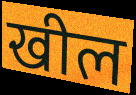
खील